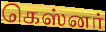
கெஸ்னர்